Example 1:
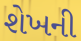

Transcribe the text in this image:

શેખની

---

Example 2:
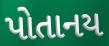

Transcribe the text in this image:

પોતાનય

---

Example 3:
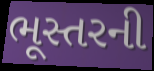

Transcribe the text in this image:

ભૂસ્તરની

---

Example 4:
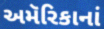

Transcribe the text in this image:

અમૅરિકાનાં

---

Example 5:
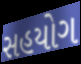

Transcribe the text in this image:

સહયોગ